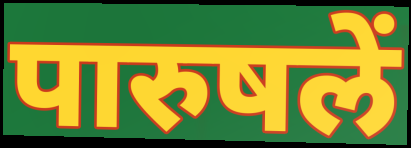
पारुषलें